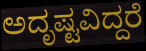
ಅದೃಷ್ಟವಿದ್ದರೆ